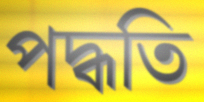
পদ্ধতি